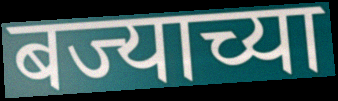
बज्याच्या